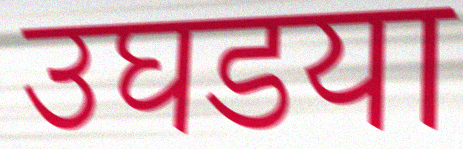
उघडया